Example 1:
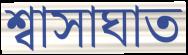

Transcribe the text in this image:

শ্বাসাঘাত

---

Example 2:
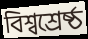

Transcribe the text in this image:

বিশ্বশ্ৰেষ্ঠ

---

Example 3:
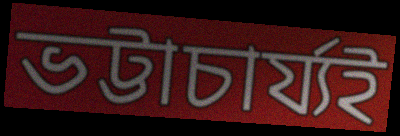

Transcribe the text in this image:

ভট্টাচাৰ্য্যই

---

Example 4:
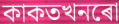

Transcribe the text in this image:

কাকতখনৰো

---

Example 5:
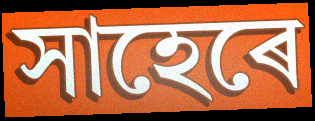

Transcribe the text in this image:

সাহেৰে